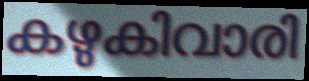
കഴുകിവാരി